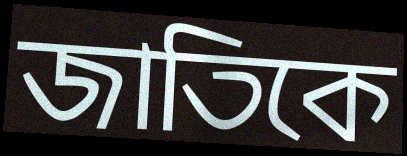
জাতিকে